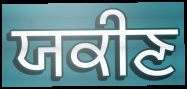
ਯਕੀਣ